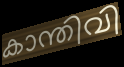
കാന്തിവി